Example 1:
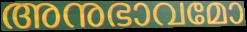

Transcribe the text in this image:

അനുഭാവമോ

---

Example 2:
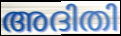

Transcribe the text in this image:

അദിതി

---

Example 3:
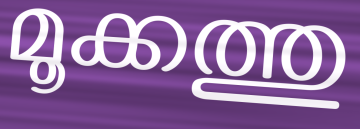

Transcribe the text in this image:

മൂക്കത്തു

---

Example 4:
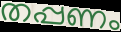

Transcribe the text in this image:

തപ്പണം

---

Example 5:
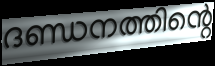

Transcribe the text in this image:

ദണ്ഡനത്തിന്റെ